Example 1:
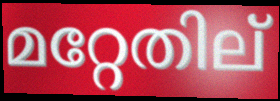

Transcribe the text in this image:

മറ്റേതില്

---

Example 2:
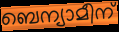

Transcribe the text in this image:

ബെന്യാമീന്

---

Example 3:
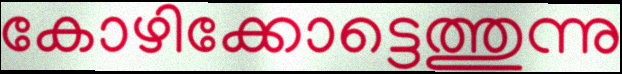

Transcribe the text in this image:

കോഴിക്കോട്ടെത്തുന്നു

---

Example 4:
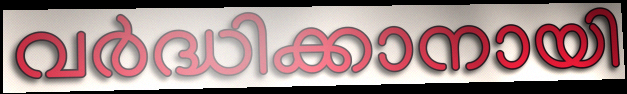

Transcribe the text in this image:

വർദ്ധിക്കാനായി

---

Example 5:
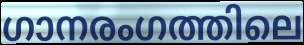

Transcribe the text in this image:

ഗാനരംഗത്തിലെ